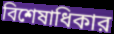
বিশেষাধিকার